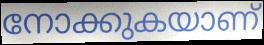
നോക്കുകയാണ്